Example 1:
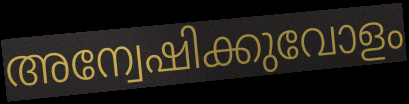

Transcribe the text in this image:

അന്വേഷിക്കുവോളം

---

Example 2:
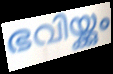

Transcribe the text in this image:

ഭവിയ്ക്കും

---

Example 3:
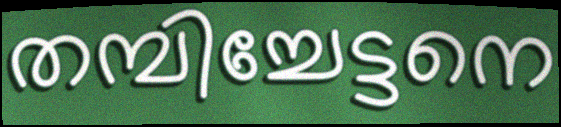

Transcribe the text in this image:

തമ്പിച്ചേട്ടനെ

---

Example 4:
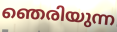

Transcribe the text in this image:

ഞെരിയുന്ന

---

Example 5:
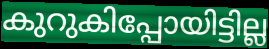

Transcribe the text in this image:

കുറുകിപ്പോയിട്ടില്ല